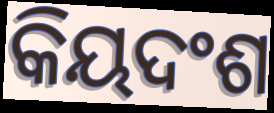
କିୟଦଂଶ